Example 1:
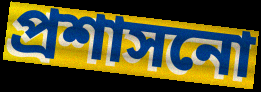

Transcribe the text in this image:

প্ৰশাসনো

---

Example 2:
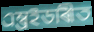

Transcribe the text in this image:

এম্ব্ৰইডাৰীত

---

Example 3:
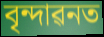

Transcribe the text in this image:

বৃন্দাৱনত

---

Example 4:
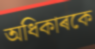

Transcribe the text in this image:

অধিকাৰকে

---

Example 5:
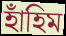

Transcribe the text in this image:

হাঁহিম